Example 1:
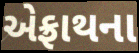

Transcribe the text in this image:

એફ્રાથના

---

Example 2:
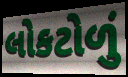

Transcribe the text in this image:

લોકટોળું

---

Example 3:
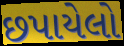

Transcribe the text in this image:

છપાયેલો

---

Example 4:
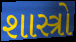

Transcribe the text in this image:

શાસ્ત્રો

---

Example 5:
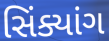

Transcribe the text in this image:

સિંક્યાંગ